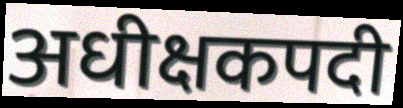
अधीक्षकपदी